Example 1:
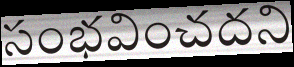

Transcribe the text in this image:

సంభవించదని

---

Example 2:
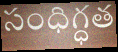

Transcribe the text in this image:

సంధిగ్ధత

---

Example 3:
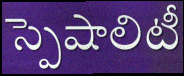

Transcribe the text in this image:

స్పెషాలిటీ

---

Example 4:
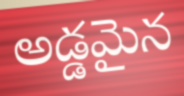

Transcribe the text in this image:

అడ్డమైన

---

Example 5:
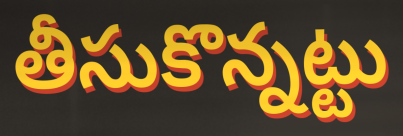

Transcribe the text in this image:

తీసుకొన్నట్టు